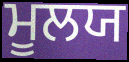
ਮੂਲਯ